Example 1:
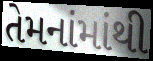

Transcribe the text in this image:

તેમનાંમાંથી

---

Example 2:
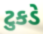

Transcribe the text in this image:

ટુકડે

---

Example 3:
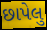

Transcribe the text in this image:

છાપેલુ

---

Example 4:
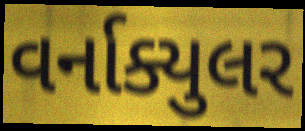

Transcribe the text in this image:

વર્નાક્યુલર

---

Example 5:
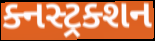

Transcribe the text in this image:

ક્નસ્ટ્રક્શન